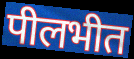
पीलभीत